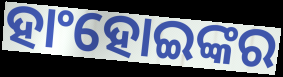
ହାଂହୋଇଙ୍କର